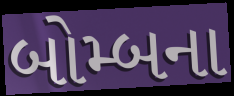
બોમ્બના